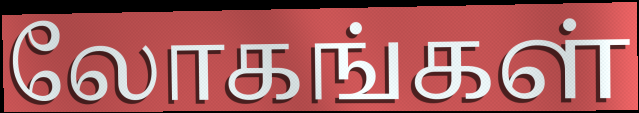
லோகங்கள்